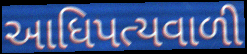
આધિપત્યવાળી